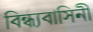
বিন্ধ্যবাসিনী